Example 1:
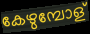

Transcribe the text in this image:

കേഴുമ്പോള്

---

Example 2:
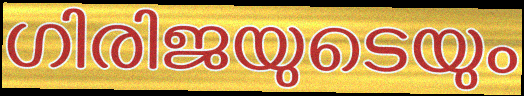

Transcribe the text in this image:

ഗിരിജയുടെയും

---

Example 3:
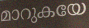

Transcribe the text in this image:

മാറുകയേ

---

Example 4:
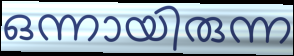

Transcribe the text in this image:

ഒന്നായിരുന്ന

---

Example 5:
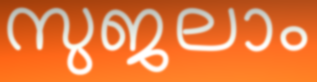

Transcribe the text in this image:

സുജലാം